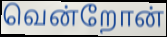
வென்றோன்